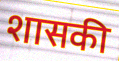
शासकी